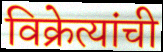
विक्रेत्यांची